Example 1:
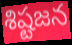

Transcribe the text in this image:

శిష్టజన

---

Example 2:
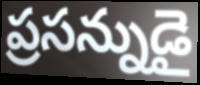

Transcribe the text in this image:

ప్రసన్నుడై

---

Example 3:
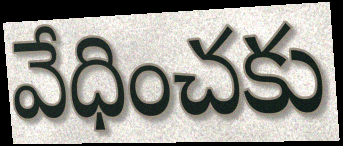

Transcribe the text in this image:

వేధించకు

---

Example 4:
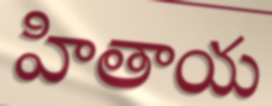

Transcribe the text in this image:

హితాయ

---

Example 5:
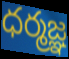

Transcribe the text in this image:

ధర్మజ్ఞ